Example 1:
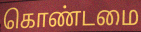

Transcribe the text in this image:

கொண்டமை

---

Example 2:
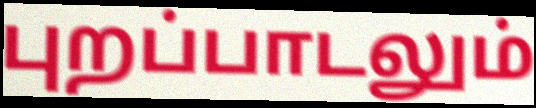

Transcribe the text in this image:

புறப்பாடலும்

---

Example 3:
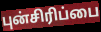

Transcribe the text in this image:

புன்சிரிப்பை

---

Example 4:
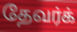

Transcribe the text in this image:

தேவர்க்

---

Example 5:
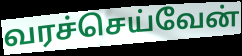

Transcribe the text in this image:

வரச்செய்வேன்